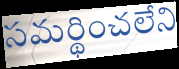
సమర్థించలేని